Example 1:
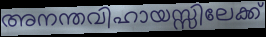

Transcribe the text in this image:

അനന്തവിഹായസ്സിലേക്ക്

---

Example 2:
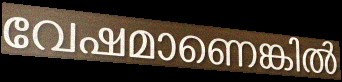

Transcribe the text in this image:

വേഷമാണെങ്കിൽ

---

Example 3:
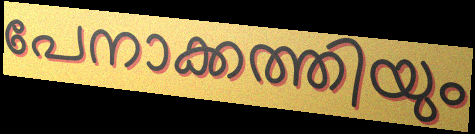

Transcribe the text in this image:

പേനാക്കത്തിയും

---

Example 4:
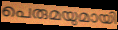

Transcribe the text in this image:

പെരുമയുമായി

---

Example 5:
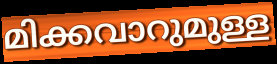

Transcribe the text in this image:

മിക്കവാറുമുള്ള